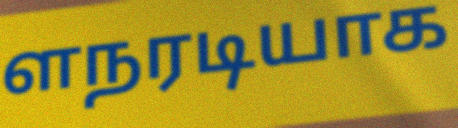
ளநரடியாக